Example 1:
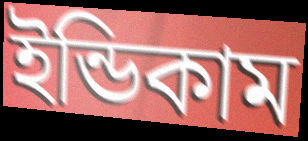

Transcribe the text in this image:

ইন্ডিকাম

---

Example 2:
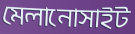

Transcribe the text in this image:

মেলানোসাইট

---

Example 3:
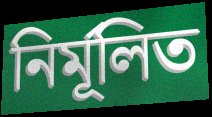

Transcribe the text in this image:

নির্মূলিত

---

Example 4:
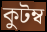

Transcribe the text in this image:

কুটম্ব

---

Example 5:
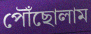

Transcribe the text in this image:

পৌঁছোলাম